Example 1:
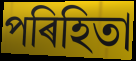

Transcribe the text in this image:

পৰিহিতা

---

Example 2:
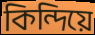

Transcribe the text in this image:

কিন্দিয়ে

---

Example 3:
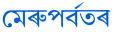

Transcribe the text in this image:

মেৰুপৰ্বতৰ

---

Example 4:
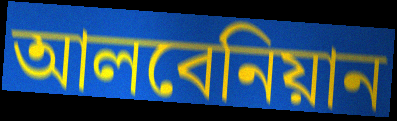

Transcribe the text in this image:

আলবেনিয়ান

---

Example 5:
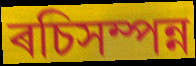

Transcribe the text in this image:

ৰচিসম্পন্ন